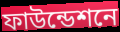
ফাউন্ডেশনে